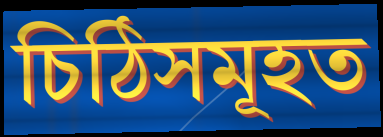
চিঠিসমূহত